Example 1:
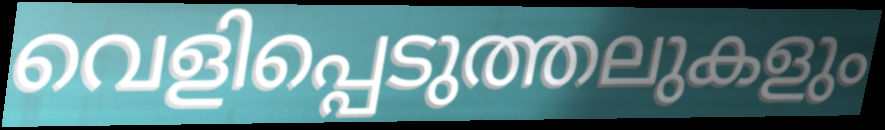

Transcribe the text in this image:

വെളിപ്പെടുത്തലുകളും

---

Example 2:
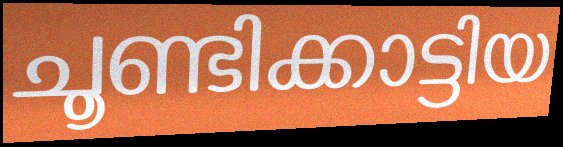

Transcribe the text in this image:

ചൂണ്ടിക്കാട്ടിയ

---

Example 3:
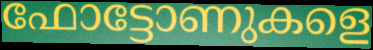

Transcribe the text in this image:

ഫോട്ടോണുകളെ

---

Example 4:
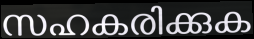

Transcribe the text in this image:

സഹകരിക്കുക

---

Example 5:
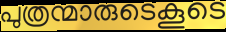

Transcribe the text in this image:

പുത്രന്മാരുടെകൂടെ